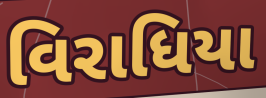
વિરાધિયા